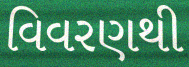
વિવરણથી